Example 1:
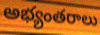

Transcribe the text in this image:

అభ్యంతరాలు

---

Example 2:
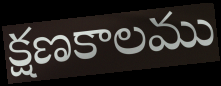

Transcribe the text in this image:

క్షణకాలము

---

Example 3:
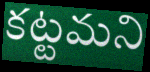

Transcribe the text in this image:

కట్టమని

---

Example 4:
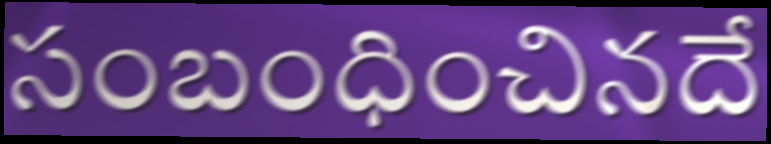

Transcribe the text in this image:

సంబంధించినదే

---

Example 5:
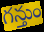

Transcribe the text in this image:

గన్తుం